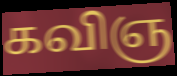
கவிஞ